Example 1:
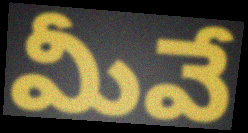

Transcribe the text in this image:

మీవే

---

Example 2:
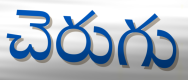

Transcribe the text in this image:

చెరుగు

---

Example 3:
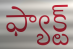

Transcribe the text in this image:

ఫ్యాక్ట్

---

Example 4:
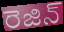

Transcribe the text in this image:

రెజిన్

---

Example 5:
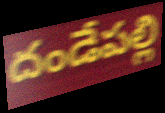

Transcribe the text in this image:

దండేపల్లి